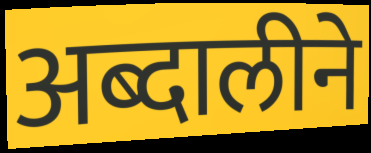
अब्दालीने